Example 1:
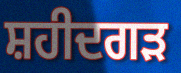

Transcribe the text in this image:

ਸ਼ਹੀਦਗੜ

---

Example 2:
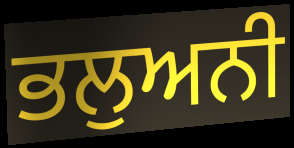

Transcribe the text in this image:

ਭਲੁਅਨੀ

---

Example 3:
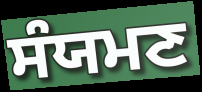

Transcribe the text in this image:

ਸੰਯਮਣ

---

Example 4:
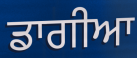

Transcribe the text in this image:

ਡਾਗੀਆ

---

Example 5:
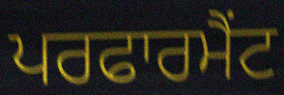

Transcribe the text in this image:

ਪਰਫਾਰਮੈਂਟ